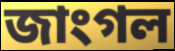
জাংগল